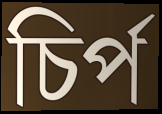
চির্প